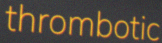
thrombotic